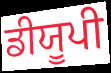
ਡੀਯੂਪੀ